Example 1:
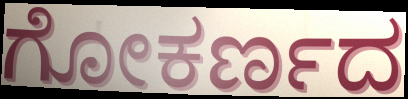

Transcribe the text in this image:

ಗೋಕರ್ಣದ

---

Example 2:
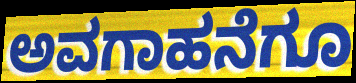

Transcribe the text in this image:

ಅವಗಾಹನೆಗೂ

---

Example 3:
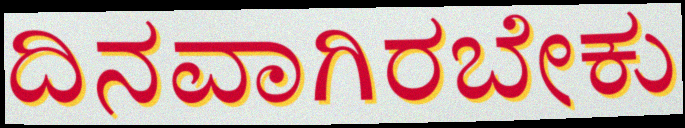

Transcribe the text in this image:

ದಿನವಾಗಿರಬೇಕು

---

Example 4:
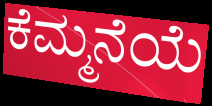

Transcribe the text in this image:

ಕೆಮ್ಮನೆಯೆ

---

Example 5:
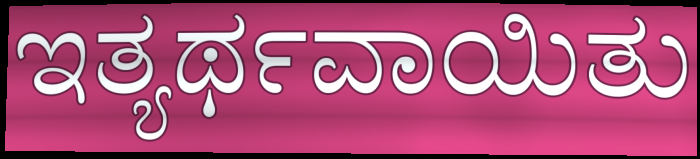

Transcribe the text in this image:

ಇತ್ಯರ್ಥವಾಯಿತು